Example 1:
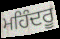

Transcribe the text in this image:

ਮਹਿੰਦਰੂ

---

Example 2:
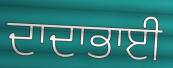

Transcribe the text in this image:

ਦਾਦਾਭਾਈ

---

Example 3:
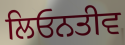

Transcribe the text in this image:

ਲਿਓਨਤੀਵ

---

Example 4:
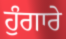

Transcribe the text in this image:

ਹੁੰਗਾਰੇ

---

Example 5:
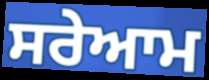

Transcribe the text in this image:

ਸਰੇਆਮ